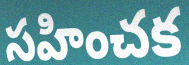
సహించక